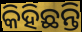
କିହିଛନ୍ତି